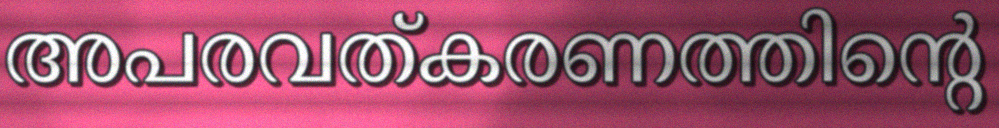
അപരവത്കരണത്തിന്റെ